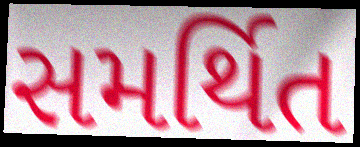
સમર્થિત